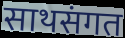
साथसंगत